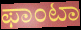
ಫಾಂಟಾ